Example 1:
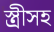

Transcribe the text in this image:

স্ত্রীসহ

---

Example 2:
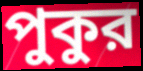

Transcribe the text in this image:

পুকুর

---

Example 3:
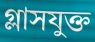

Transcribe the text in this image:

গ্লাসযুক্ত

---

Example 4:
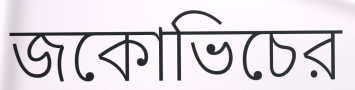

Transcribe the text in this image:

জকোভিচের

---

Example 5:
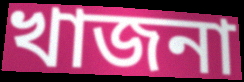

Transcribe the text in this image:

খাজনা